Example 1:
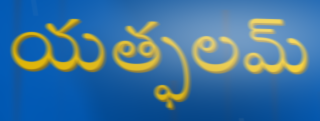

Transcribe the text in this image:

యత్ఫలమ్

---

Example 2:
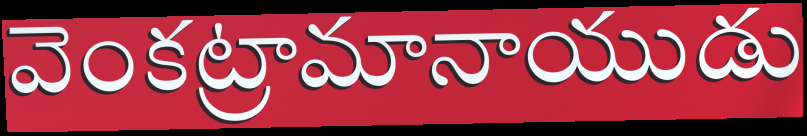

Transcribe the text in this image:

వెంకట్రామానాయుడు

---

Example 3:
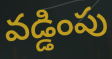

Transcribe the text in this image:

వడ్డింపు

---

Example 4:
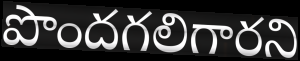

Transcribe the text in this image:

పొందగలిగారని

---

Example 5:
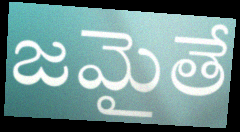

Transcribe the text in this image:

జమైతే